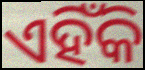
ଏହିଁକି